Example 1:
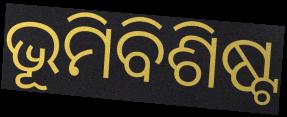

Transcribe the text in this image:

ଭୂମିବିଶିଷ୍ଟ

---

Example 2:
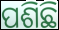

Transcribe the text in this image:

ପଶିଛି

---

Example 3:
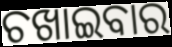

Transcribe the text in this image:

ଚଖାଇବାର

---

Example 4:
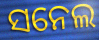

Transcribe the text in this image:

ସନେଲ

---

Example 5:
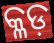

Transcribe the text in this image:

କ୍ଳଡ଼